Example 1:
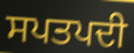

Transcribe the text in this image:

ਸਪਤਪਦੀ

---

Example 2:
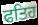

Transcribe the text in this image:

ਫਤਿਹ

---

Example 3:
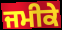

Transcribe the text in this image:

ਜਮੀਕੇ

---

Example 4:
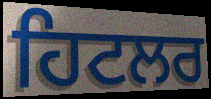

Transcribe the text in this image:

ਹਿਟਲਰ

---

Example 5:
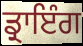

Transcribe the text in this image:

ਡ੍ਰਾਇੰਗ